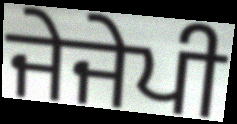
ਜੇਜੇਪੀ